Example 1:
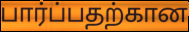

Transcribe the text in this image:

பார்ப்பதற்கான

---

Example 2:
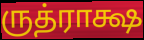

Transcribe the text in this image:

ருத்ராக்ஷ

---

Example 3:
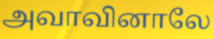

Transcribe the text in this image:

அவாவினாலே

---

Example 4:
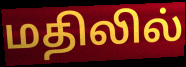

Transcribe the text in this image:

மதிலில்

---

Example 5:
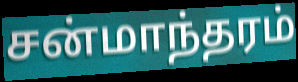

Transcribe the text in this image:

சன்மாந்தரம்